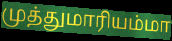
முத்துமாரியம்மா